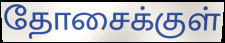
தோசைக்குள்